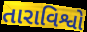
તારાવિશ્વો